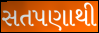
સતપણાથી